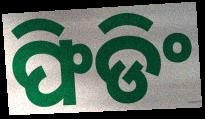
ଫିଡିଂ